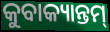
କୁବାକ୍ୟାନ୍ତମ୍